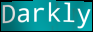
Darkly